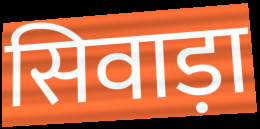
सिवाड़ा